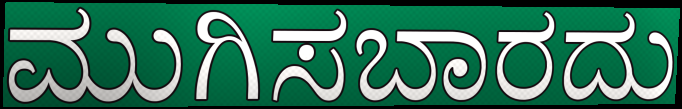
ಮುಗಿಸಬಾರದು